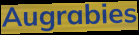
Augrabies